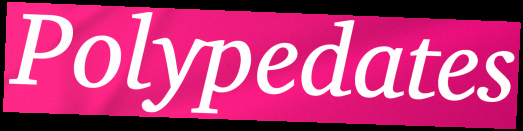
Polypedates